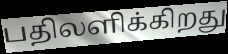
பதிலளிக்கிறது